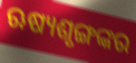
ଋଷ୍ୟଶୃଙ୍ଗଙ୍କର